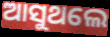
ଆସୁଥଲେ